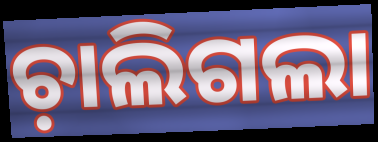
ଚ଼ାଲିଗଲା